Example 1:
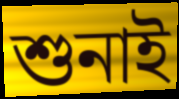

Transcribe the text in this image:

শুনাই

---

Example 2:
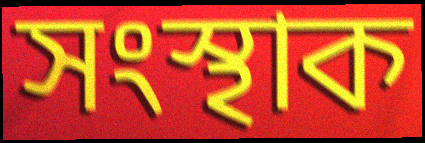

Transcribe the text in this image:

সংস্থাক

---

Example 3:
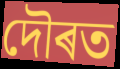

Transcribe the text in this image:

দৌৰত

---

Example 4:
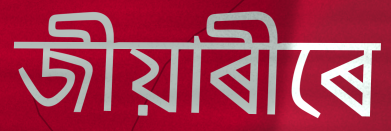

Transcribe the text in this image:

জীয়াৰীৰে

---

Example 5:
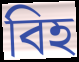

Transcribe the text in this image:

বিহ